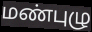
மண்புழு